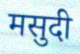
मसुदी